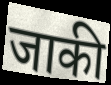
जाकी